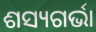
ଶସ୍ୟଗର୍ଭା